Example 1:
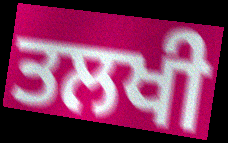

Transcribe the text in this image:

ਤਲਖੀ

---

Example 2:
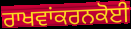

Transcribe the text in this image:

ਰਾਖਵਾਂਕਰਨਕੋਈ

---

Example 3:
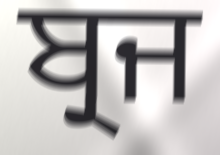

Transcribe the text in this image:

ਬ੍ਰਜ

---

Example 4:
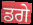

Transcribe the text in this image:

ਡਗੇ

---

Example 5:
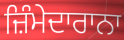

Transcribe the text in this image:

ਜ਼ਿੰਮੇਦਾਰਾਨਾ